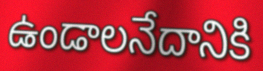
ఉండాలనేదానికి